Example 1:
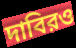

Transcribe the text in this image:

দাবিরও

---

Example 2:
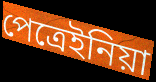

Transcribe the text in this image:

পেত্রেইনিয়া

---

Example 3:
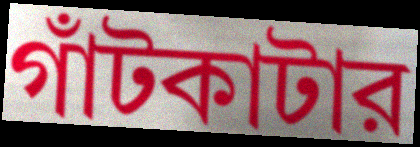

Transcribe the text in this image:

গাঁটকাটার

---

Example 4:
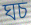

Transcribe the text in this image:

ঘচ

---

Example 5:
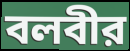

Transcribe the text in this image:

বলবীর